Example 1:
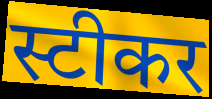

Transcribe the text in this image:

स्टीकर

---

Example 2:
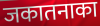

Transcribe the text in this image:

जकातनाका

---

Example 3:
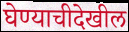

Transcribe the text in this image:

घेण्याचीदेखील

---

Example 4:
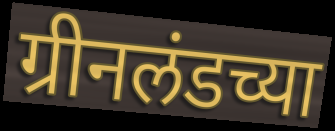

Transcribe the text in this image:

ग्रीनलंडच्या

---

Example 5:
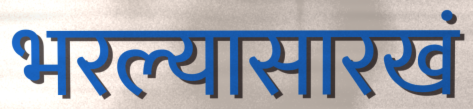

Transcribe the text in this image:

भरल्यासारखं